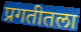
प्रगतीतला